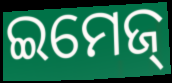
ଇମେଜ୍